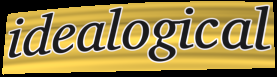
idealogical